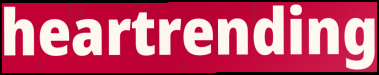
heartrending